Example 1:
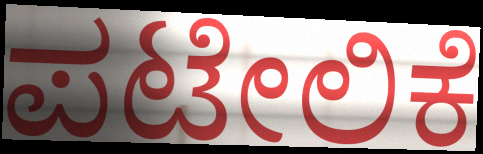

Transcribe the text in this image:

ಪಟೇಲಿಕೆ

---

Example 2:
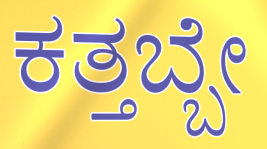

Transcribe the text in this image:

ಕತ್ತಬ್ಬೇ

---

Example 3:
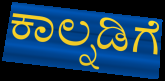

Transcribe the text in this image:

ಕಾಲ್ನಡಿಗೆ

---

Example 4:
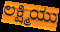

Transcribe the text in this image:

ಲಕ್ಷ್ಮಿಯು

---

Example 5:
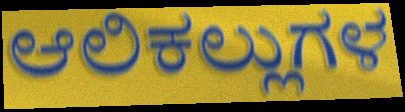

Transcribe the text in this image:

ಆಲಿಕಲ್ಲುಗಳ